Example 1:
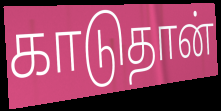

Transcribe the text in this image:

காடுதான்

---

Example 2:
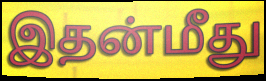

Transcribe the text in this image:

இதன்மீது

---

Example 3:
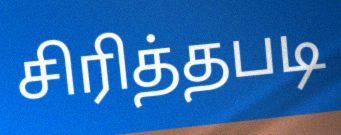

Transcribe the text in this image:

சிரித்தபடி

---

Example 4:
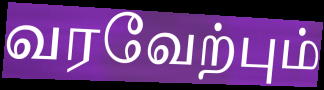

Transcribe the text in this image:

வரவேற்பும்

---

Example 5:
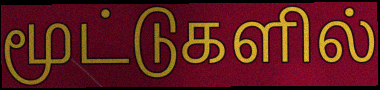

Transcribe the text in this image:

மூட்டுகளில்